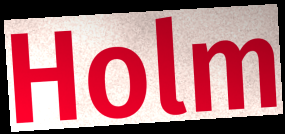
Holm